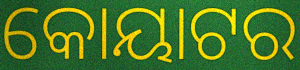
କୋୟାଟର